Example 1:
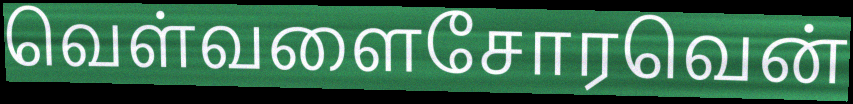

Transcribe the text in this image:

வெள்வளைசோரவென்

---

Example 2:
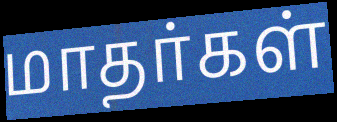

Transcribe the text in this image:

மாதர்கள்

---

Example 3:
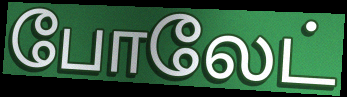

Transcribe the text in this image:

போலேட்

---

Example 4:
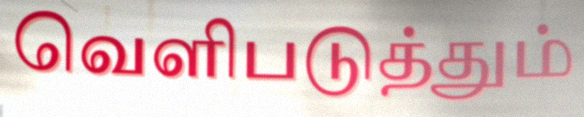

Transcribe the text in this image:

வெளிபடுத்தும்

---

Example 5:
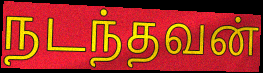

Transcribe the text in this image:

நடந்தவன்